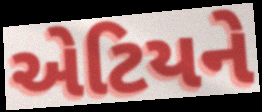
એટિયને